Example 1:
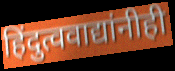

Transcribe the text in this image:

हिंदुत्ववाद्यांनीही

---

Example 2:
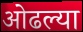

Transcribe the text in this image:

ओढल्या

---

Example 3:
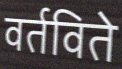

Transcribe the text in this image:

वर्तविते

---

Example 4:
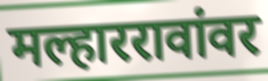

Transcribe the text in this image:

मल्हाररावांवर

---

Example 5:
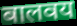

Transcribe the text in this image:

बालवय